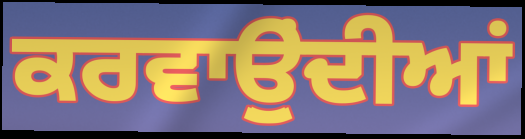
ਕਰਵਾਉੁਂਦੀਆਂ